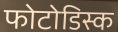
फोटोडिस्क